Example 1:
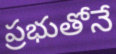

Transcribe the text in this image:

ప్రభుతోనే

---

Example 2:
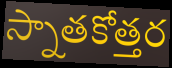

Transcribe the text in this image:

స్నాతకోత్తర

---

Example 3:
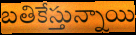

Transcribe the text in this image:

బతికేస్తున్నాయి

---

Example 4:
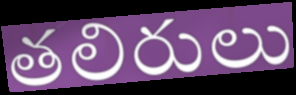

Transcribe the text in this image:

తలిరులు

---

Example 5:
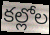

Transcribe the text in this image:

కల్లోల